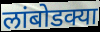
लांबोडक्या